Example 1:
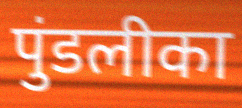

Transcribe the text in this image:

पुंडलीका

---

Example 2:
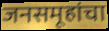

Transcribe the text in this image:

जनसमूहांचा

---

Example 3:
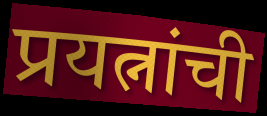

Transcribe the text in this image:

प्रयत्नांची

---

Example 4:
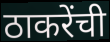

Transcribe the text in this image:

ठाकरेंची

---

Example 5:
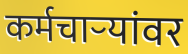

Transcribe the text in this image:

कर्मचाऱ्यांवर